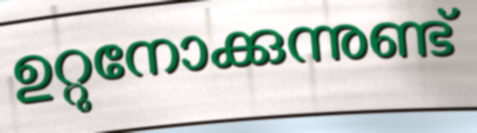
ഉറ്റുനോക്കുന്നുണ്ട്